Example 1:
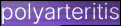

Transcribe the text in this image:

polyarteritis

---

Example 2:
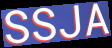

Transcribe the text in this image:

SSJA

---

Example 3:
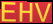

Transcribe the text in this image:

EHV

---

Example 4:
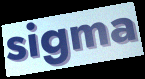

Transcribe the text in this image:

sigma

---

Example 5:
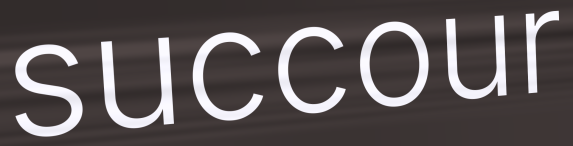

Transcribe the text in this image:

succour